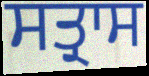
ਸਤ੍ਰਾਸ